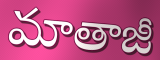
మాతాజీ